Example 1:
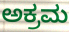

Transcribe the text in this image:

ಅಕ್ರಮ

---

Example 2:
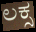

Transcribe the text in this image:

ಲಕ್ಸ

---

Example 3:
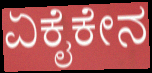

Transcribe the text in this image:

ಏಕೈಕೇನ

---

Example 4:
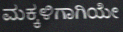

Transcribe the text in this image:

ಮಕ್ಕಳಿಗಾಗಿಯೇ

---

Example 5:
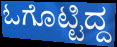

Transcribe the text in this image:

ಓಗೊಟ್ಟಿದ್ದ